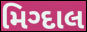
મિગ્દાલ